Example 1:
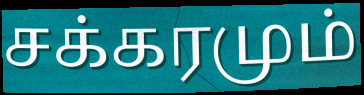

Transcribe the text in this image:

சக்கரமும்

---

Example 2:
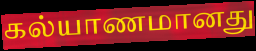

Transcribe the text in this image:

கல்யாணமானது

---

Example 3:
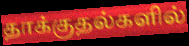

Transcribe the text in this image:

தாக்குதல்களில்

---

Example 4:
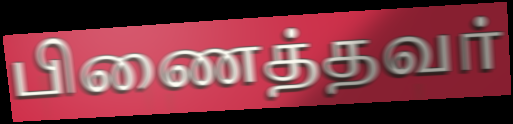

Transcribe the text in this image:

பிணைத்தவர்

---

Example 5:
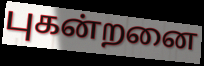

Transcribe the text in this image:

புகன்றனை